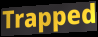
Trapped